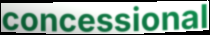
concessional